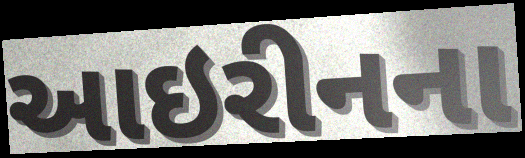
આઇરીનના